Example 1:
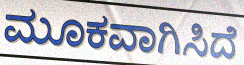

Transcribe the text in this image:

ಮೂಕವಾಗಿಸಿದೆ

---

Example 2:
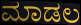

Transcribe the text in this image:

ಮಾಡಲ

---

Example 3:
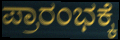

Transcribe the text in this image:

ಪ್ರಾರಂಭಕ್ಕೆ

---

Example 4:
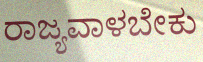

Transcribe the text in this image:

ರಾಜ್ಯವಾಳಬೇಕು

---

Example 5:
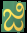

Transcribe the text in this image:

ಜಿ